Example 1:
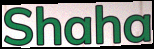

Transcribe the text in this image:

Shaha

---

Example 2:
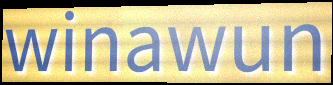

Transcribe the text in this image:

winawun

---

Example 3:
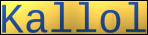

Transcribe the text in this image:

Kallol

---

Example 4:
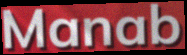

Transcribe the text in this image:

Manab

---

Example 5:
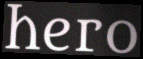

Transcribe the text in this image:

hero